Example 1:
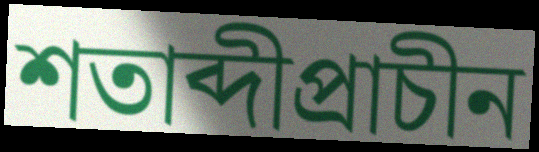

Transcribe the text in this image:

শতাব্দীপ্রাচীন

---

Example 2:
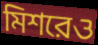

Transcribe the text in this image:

মিশরেও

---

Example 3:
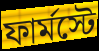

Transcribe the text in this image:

ফার্মস্টে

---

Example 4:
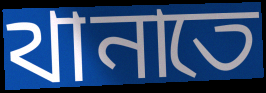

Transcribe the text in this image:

থানাতে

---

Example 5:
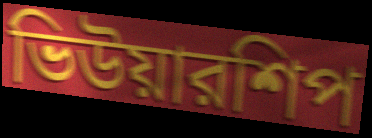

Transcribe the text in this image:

ভিউয়ারশিপ